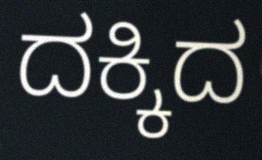
ದಕ್ಕಿದ